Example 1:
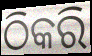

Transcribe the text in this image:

ଠିକରି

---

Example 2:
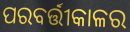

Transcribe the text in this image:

ପରବର୍ତ୍ତୀକାଳର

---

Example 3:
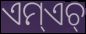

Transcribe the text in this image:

ଏମ୍ଏଚ୍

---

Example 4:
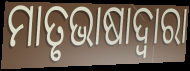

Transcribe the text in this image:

ମାତୃଭାଷାଦ୍ୱାରା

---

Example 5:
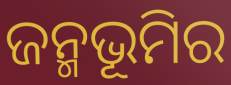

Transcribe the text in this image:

ଜନ୍ମଭୂମିର